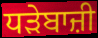
ਧੜੇਬਾਜ਼ੀ